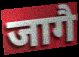
जागै